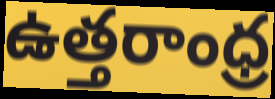
ఉత్తరాంధ్ర